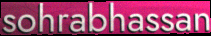
sohrabhassan